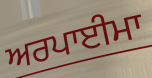
ਅਰਪਾਈਮਾ